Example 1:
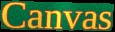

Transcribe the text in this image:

Canvas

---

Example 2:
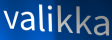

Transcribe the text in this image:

valikka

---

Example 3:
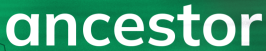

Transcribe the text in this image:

ancestor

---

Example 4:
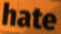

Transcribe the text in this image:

hate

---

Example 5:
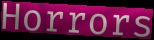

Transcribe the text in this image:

Horrors